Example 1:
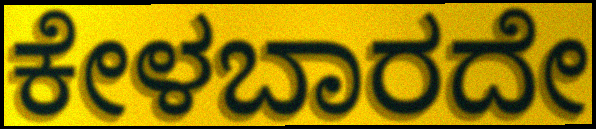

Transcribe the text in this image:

ಕೇಳಬಾರದೇ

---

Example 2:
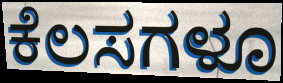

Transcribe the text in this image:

ಕೆಲಸಗಳೂ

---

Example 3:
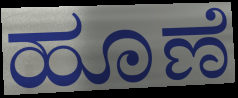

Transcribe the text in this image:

ಹೂಣೆ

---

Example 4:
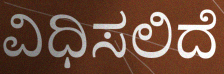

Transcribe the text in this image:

ವಿಧಿಸಲಿದೆ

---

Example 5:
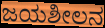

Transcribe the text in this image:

ಜಯಶೀಲನ